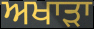
ਅਖਾੜਾ